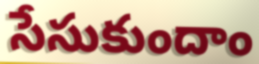
సేసుకుందాం